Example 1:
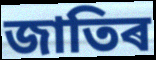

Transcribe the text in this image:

জাতিৰ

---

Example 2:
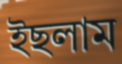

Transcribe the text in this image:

ইছলাম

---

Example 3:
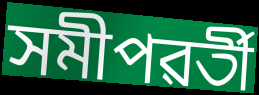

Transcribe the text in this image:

সমীপৱৰ্তী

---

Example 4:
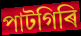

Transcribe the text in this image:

পাটগিৰি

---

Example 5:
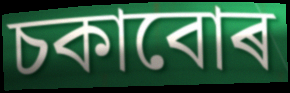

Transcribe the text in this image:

চকাবোৰ